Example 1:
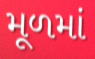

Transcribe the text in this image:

મૂળમાં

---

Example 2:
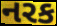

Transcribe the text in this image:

નરક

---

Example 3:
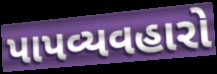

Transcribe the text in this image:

પાપવ્યવહારો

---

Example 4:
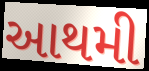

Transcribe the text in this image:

આથમી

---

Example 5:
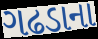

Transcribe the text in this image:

ગઢડાના